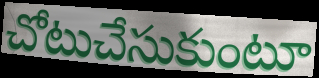
చోటుచేసుకుంటూ